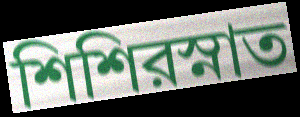
শিশিরস্নাত